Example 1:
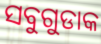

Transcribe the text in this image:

ସବୁଗୁଡାକ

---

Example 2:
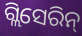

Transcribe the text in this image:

ଗ୍ଲିସେରିନ୍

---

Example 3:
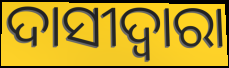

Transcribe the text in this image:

ଦାସୀଦ୍ୱାରା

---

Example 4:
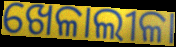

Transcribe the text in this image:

ଖେଳାଲୀଳା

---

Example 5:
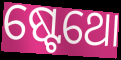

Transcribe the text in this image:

ଷ୍ଟେଥୋ